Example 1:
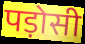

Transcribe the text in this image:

पड़ोसी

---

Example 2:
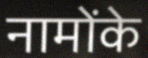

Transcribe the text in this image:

नामोंके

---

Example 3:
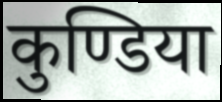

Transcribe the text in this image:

कुण्डिया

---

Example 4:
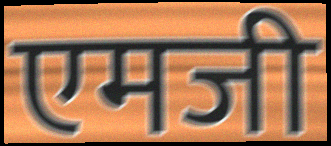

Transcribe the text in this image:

एमजी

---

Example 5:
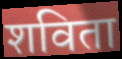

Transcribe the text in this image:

शविता